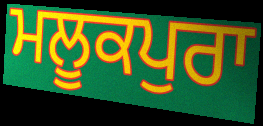
ਮਲੂਕਪੁਰਾ